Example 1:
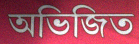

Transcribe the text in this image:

অভিজিত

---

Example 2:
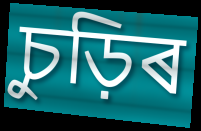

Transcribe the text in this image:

চুড়িৰ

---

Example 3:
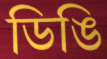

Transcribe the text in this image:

ডিঙি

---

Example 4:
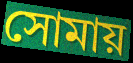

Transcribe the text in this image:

সোমায়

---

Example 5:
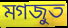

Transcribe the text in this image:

মগজুত